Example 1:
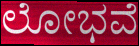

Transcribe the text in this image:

ಲೋಭವೆ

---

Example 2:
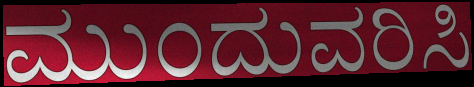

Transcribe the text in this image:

ಮುಂದುವರಿಸಿ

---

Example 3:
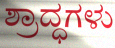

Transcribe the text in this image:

ಶ್ರಾದ್ಧಗಳು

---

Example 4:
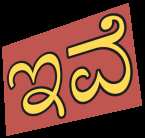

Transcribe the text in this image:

ಇವೆ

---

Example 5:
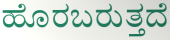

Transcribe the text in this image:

ಹೊರಬರುತ್ತದೆ